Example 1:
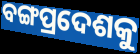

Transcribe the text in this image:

ବଙ୍ଗପ୍ରଦେଶକୁ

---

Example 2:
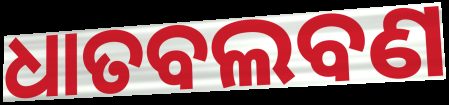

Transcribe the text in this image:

ଧାତବଲବଣ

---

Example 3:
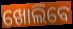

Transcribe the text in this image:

ଖୋଲିବେ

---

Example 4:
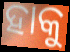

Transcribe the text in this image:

ହାକୁ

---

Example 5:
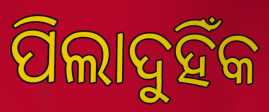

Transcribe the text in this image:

ପିଲାଦୁହିଁକ